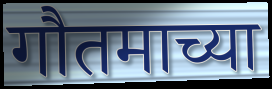
गौतमाच्या